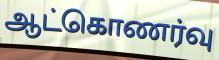
ஆட்கொணர்வு